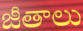
జీతాలు